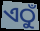
ଏଠୁଁ